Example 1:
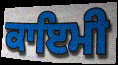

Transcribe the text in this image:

ਕਾਇਮੀ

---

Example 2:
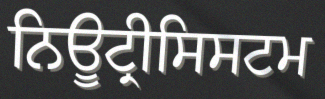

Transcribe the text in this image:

ਨਿਊਟ੍ਰੀਸਿਸਟਮ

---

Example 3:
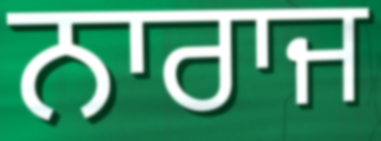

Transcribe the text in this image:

ਨਾਰਾਜ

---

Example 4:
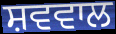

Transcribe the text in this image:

ਸ਼ਵਵਾਲ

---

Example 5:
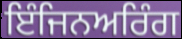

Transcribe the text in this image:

ਇੰਜਿਨਅਰਿੰਗ